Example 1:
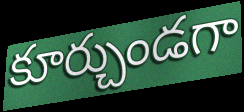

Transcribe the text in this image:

కూర్చుండగా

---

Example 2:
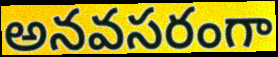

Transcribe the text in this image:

అనవసరంగా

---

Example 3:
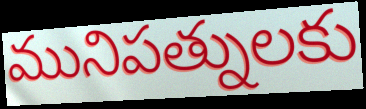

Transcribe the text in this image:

మునిపత్నులకు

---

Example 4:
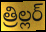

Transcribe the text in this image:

త్రిల్లర్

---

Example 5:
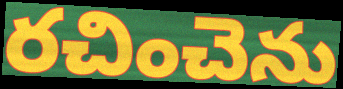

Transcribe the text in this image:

రచించెను